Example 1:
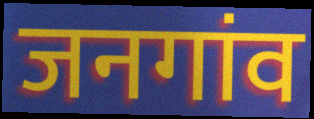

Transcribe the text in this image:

जनगांव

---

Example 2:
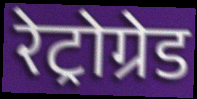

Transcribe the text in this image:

रेट्रोग्रेड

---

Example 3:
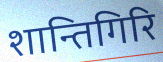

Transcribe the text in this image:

शान्तिगिरि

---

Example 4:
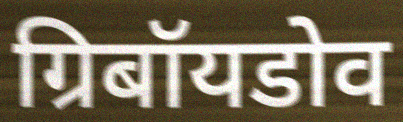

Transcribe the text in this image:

ग्रिबॉयडोव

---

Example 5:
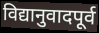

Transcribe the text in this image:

विद्यानुवादपूर्व